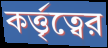
কর্ত্তৃত্বের